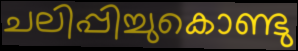
ചലിപ്പിച്ചുകൊണ്ടു